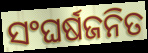
ସଂଘର୍ଷଜନିତ